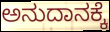
ಅನುದಾನಕ್ಕೆ